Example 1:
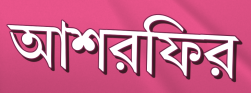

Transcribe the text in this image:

আশরফির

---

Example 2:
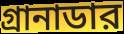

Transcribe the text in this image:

গ্রানাডার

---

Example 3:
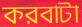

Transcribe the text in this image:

করবাটা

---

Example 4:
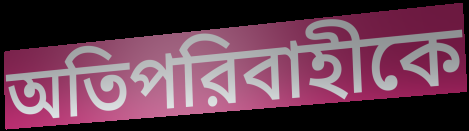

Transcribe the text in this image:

অতিপরিবাহীকে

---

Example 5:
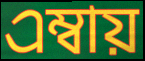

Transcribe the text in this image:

এম্বায়